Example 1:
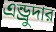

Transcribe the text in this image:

এন্ড্রুদার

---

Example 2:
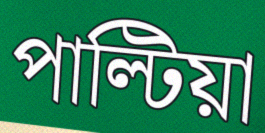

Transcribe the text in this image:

পাল্টিয়া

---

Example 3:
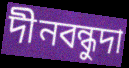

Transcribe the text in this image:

দীনবন্ধুদা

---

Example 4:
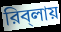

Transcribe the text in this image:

রিব্‌লায়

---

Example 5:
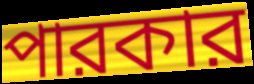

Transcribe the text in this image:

পারকার